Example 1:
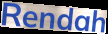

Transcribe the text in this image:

Rendah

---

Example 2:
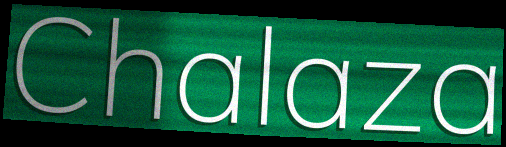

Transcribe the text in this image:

Chalaza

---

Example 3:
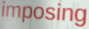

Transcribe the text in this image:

imposing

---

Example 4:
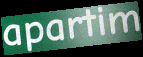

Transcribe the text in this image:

apartim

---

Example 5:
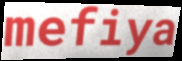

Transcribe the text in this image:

mefiya